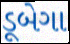
ડૂબેગા